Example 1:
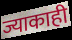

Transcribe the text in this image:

ज्याकाही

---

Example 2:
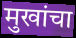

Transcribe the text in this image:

मुखांचा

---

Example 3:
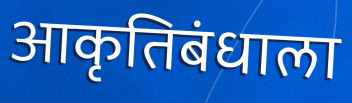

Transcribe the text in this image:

आकृतिबंधाला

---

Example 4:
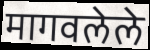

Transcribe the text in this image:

मागवलेले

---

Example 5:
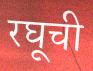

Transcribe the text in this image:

रघूची